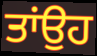
ਤਾਂਉਹ